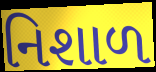
નિશાળ